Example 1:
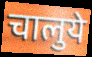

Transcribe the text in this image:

चालुये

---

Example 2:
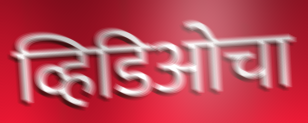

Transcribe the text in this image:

व्हिडिओचा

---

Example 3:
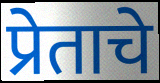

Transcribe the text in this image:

प्रेताचे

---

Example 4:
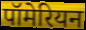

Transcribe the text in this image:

पॉमेरियन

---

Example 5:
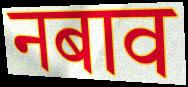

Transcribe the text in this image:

नबाव